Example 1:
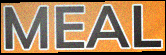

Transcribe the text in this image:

MEAL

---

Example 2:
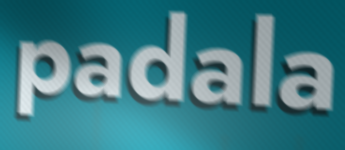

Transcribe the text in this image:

padala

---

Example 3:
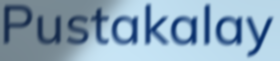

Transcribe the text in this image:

Pustakalay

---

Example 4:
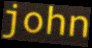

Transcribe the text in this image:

john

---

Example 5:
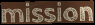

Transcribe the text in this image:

mission